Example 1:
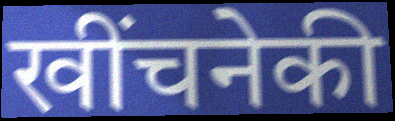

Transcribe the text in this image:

खींचनेकी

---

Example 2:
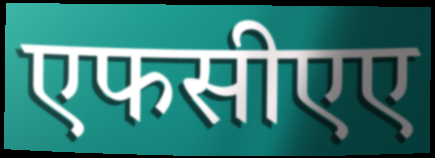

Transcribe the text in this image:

एफसीएए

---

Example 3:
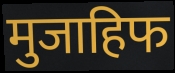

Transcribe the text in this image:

मुजाहिफ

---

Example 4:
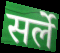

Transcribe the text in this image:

सर्ले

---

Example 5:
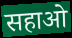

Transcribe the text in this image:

सहाओ